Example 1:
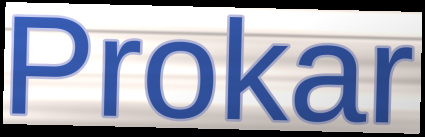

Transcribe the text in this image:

Prokar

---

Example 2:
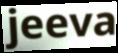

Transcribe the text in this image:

jeeva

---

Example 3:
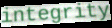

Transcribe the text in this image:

integrity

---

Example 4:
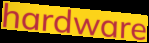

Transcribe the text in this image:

hardware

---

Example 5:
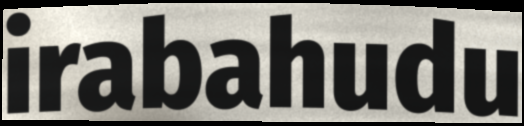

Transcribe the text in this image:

irabahudu